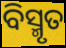
ବିସ୍ମୃତ